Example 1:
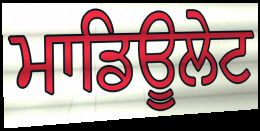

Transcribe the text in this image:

ਮਾਡਿਊਲੇਟ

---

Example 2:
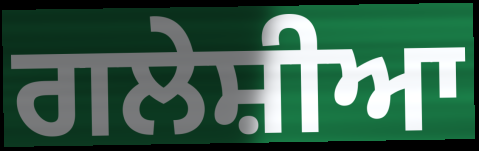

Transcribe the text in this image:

ਗਲੇਸ਼ੀਆ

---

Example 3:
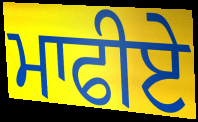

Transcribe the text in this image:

ਮਾਫੀਏ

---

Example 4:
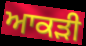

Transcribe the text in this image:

ਆਕੜੀ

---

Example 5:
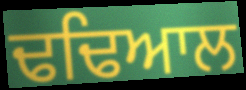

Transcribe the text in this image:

ਢਢਿਆਲ